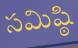
సమిష్ఠి